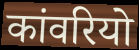
कांवरियो